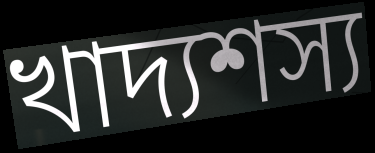
খাদ্যশস্য